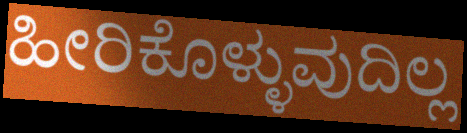
ಹೀರಿಕೊಳ್ಳುವುದಿಲ್ಲ